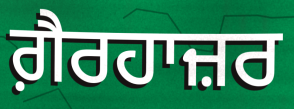
ਗ਼ੈਰਹਾਜ਼ਰ